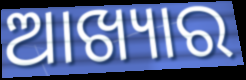
ଆଖ୍ୟାର